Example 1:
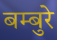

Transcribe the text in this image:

बम्बुरे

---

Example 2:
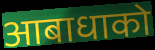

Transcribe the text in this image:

आबाधाको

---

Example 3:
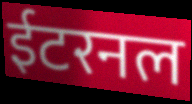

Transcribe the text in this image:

ईटरनल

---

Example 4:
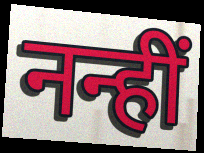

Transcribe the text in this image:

नन्हीं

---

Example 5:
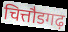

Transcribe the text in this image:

चित्तौडगढ़